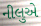
નીલુએ